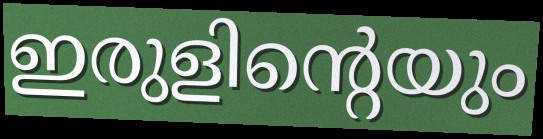
ഇരുളിന്റെയും